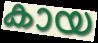
കായ